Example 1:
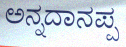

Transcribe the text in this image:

ಅನ್ನದಾನಪ್ಪ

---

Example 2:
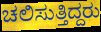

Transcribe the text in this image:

ಚಲಿಸುತ್ತಿದ್ದರು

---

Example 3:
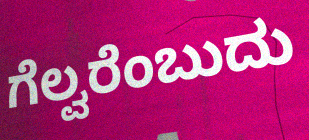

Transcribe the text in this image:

ಗೆಲ್ವರೆಂಬುದು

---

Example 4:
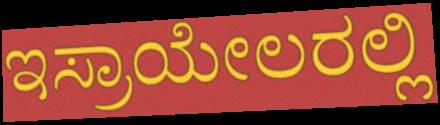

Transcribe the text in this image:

ಇಸ್ರಾಯೇಲರಲ್ಲಿ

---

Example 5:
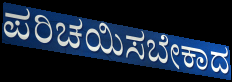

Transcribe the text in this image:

ಪರಿಚಯಿಸಬೇಕಾದ